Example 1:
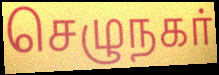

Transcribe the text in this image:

செழுநகர்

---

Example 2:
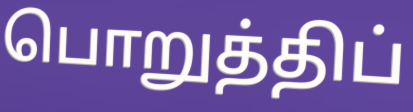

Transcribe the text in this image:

பொறுத்திப்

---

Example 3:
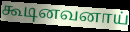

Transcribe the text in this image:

கூடினவனாய்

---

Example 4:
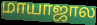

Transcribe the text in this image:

மாயாஜால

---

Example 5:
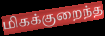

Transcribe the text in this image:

மிகக்குறைந்த